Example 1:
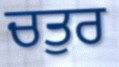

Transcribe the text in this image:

ਚਤੁਰ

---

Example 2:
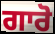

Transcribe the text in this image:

ਗਾਰੋ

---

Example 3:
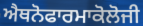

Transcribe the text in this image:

ਐਥਨੋਫਾਰਮਾਕੋਲੋਜੀ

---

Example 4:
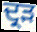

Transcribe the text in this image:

ਦ੍ਰੜ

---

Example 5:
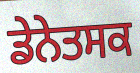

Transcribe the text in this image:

ਡੇਨੇਤਸਕ